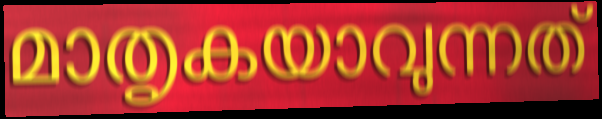
മാതൃകയാവുന്നത്